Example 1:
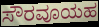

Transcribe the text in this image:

ಸೌರವೂಯಹ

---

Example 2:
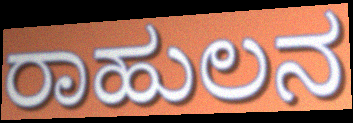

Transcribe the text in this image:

ರಾಹುಲನ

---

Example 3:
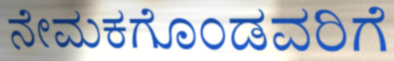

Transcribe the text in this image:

ನೇಮಕಗೊಂಡವರಿಗೆ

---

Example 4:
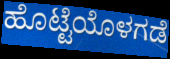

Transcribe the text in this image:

ಹೊಟ್ಟೆಯೊಳಗಡೆ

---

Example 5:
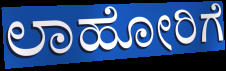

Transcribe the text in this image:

ಲಾಹೋರಿಗೆ